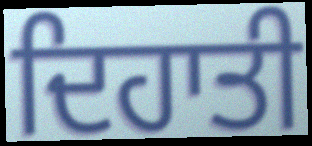
ਦਿਹਾਤੀ